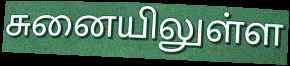
சுனையிலுள்ள